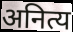
अनित्य